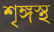
শৃঙ্গস্থ